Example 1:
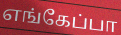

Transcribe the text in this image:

எங்கேப்பா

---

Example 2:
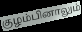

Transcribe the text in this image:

குழம்பினாலும்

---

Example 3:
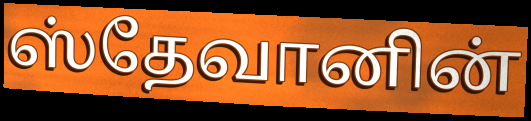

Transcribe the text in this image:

ஸ்தேவானின்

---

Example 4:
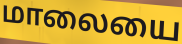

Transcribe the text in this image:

மாலையை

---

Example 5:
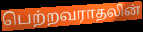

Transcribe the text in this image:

பெற்றவராதலின்